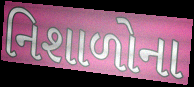
નિશાળોના